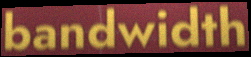
bandwidth